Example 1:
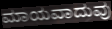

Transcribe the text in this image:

ಮಾಯವಾದುವು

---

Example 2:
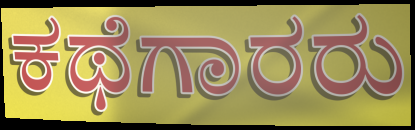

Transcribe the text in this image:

ಕಥೆಗಾರರು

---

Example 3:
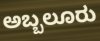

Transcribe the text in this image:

ಅಬ್ಬಲೂರು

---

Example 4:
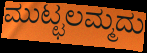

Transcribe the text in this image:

ಮುಟ್ಟಲಮ್ಮದು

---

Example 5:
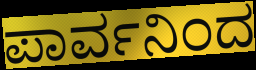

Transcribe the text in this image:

ಪಾರ್ವನಿಂದ